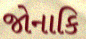
જોનાકિ